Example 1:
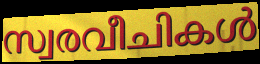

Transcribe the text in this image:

സ്വരവീചികൾ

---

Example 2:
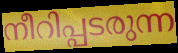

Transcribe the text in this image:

നീറിപ്പടരുന്ന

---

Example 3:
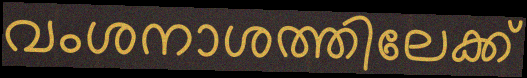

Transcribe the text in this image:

വംശനാശത്തിലേക്ക്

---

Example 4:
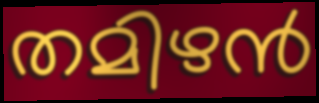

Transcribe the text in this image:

തമിഴൻ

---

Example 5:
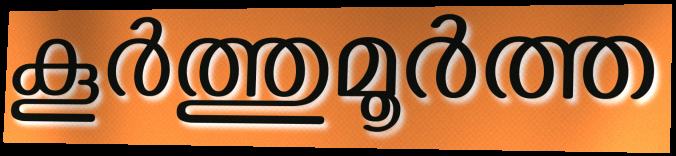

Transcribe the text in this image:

കൂർത്തുമൂർത്ത